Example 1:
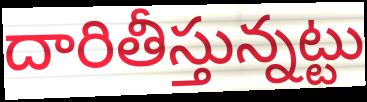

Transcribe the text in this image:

దారితీస్తున్నట్టు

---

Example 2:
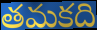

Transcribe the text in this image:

తమకది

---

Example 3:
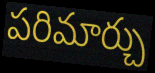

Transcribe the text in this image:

పరిమార్చు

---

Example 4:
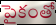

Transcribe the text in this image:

పైకంతో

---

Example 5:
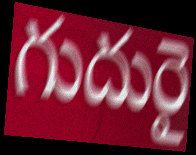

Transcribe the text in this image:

గుదురై